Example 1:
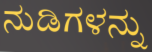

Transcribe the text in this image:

ನುಡಿಗಳನ್ನು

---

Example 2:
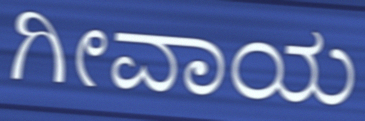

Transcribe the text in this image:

ಗೀವಾಯ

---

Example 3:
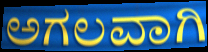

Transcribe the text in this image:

ಅಗಲವಾಗಿ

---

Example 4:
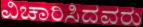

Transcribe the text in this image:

ವಿಚಾರಿಸಿದವರು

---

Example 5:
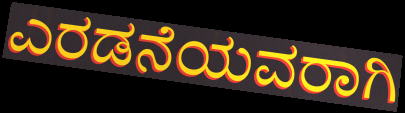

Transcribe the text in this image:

ಎರಡನೆಯವರಾಗಿ